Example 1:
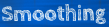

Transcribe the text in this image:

Smoothing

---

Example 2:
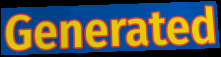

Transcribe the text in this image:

Generated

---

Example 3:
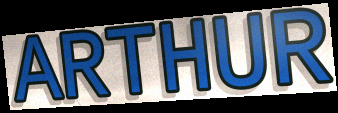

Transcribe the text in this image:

ARTHUR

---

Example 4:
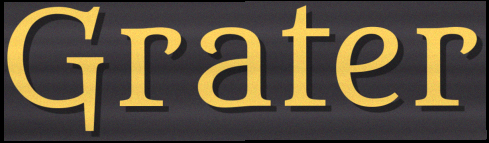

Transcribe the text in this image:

Grater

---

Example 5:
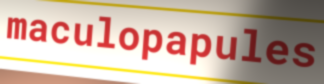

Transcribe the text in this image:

maculopapules